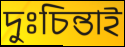
দুঃচিন্তাই